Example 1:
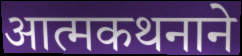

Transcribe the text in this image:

आत्मकथनाने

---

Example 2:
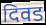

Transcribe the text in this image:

दिवड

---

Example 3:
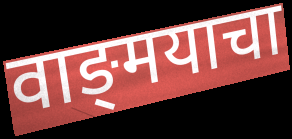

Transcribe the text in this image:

वाङ्मयाचा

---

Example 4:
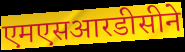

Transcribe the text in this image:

एमएसआरडीसीने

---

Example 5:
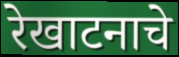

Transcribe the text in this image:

रेखाटनाचे